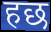
हछ